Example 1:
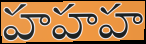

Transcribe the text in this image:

హహహ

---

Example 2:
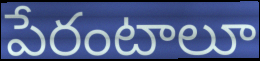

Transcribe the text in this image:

పేరంటాలూ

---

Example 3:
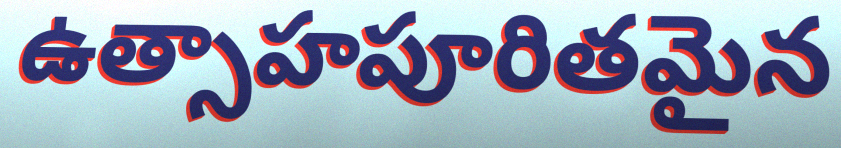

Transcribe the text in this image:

ఉత్సాహపూరితమైన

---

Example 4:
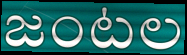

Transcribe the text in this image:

జంటల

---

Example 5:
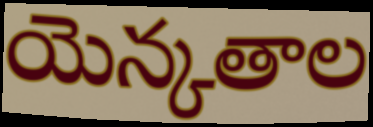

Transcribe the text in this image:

యెన్కతాల